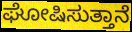
ಘೋಷಿಸುತ್ತಾನೆ